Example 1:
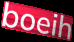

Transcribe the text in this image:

boeih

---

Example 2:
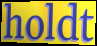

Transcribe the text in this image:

holdt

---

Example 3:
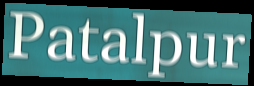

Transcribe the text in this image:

Patalpur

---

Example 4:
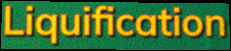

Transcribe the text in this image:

Liquification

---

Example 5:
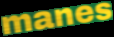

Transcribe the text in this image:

manes